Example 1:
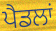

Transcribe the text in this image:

ਪੈਡਲਾਂ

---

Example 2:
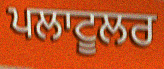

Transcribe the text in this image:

ਪਲਾਟੂਲਰ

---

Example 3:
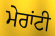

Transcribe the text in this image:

ਮੇਰਾਂਟੀ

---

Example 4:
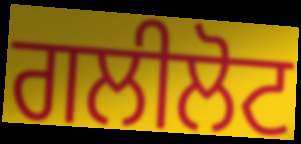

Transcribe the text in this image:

ਗਲੀਲੋਟ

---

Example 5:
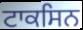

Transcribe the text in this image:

ਟਾਕਸਿਨ